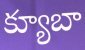
క్యూబా